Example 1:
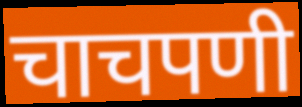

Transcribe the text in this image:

चाचपणी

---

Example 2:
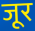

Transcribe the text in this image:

जूर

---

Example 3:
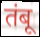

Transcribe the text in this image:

तंबू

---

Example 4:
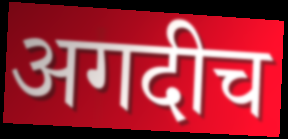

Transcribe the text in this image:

अगदीच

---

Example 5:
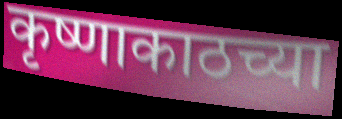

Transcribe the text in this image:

कृष्णाकाठच्या